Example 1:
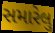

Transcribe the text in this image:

સમારેલુ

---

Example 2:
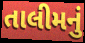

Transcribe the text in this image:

તાલીમનું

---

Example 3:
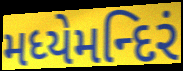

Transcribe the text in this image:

મધ્યેમન્દિરં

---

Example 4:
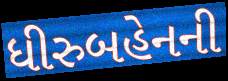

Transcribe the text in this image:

ધીરુબહેનની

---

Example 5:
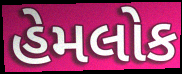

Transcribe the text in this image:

હેમલોક